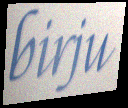
birju